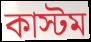
কাস্টম